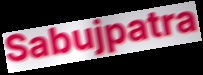
Sabujpatra